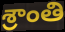
శ్రాంతి